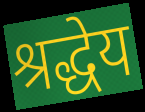
श्रद्धेय